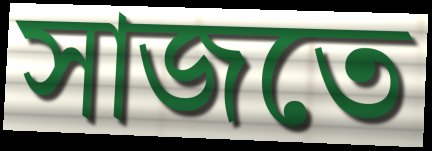
সাজতে